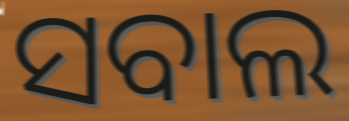
ସବାଲ